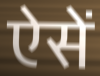
ऐसें